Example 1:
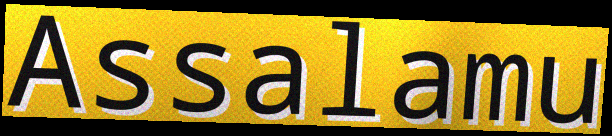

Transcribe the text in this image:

Assalamu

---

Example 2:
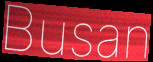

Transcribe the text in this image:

Busan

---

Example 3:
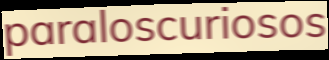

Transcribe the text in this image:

paraloscuriosos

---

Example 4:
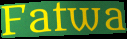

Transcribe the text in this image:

Fatwa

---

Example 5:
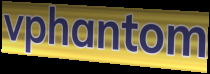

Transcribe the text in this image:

vphantom